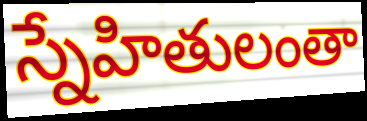
స్నేహితులంతా